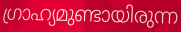
ഗ്രാഹ്യമുണ്ടായിരുന്ന